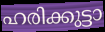
ഹരിക്കുട്ടാ